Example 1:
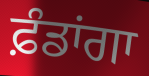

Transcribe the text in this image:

ਫ਼ੰਡਾਂਗਾ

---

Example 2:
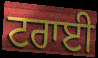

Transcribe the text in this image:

ਟਰਾਈ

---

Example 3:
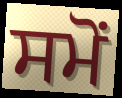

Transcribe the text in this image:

ਸਮੋਂ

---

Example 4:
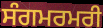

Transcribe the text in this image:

ਸੰਗਮਰਮਰੀ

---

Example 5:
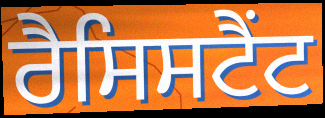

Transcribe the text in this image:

ਰੈਸਿਸਟੈਂਟ